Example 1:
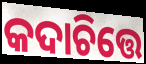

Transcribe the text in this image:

କଦାଚିତ୍ତେ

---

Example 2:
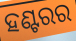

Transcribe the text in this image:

ହଣ୍ଟରର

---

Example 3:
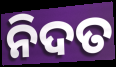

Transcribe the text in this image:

ନିଦତ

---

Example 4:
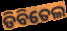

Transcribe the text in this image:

ଡିବିତେଲ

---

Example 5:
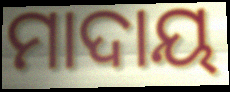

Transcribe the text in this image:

ମାଦାୟ